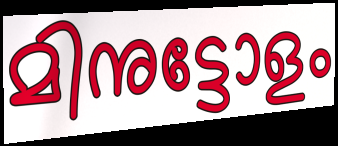
മിനുട്ടോളം